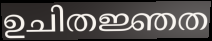
ഉചിതജ്ഞത